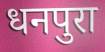
धनपुरा